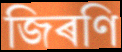
জিৰণি